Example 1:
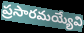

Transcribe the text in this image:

ప్రసారమయ్యేవి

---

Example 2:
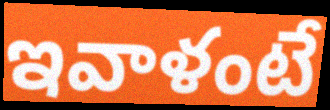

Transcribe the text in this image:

ఇవాళంటే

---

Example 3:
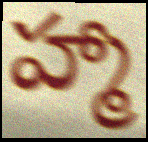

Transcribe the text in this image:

హ్మా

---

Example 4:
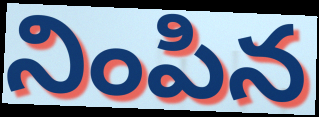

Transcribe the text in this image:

నింపిన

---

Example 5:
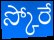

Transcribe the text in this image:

స్కోరే